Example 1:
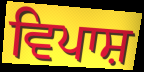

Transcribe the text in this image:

ਵਿਪਾਸ਼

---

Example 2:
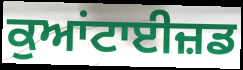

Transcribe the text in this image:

ਕੁਆਂਟਾਈਜ਼ਡ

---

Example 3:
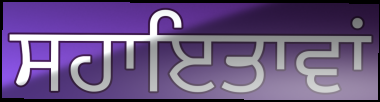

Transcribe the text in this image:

ਸਹਾਇਤਾਵਾਂ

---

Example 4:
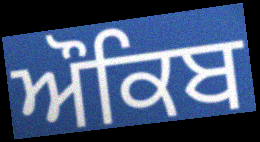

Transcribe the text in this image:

ਔਕਿਬ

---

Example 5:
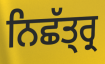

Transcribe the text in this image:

ਨਿਛੱਤ੍ਰ੍ਰ